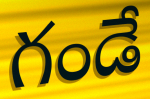
గండే